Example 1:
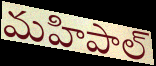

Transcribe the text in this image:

మహిపాల్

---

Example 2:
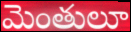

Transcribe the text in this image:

మెంతులూ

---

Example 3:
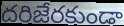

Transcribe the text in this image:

దరిజేరకుండా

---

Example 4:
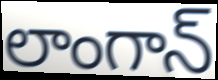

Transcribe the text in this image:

లాంగాన్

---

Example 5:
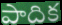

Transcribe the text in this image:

పాదిక